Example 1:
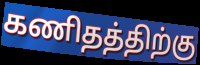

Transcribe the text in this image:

கணிதத்திற்கு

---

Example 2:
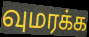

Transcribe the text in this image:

வுமரக்க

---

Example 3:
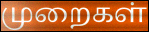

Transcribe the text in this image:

முறைகள்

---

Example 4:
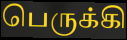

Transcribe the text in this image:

பெருக்கி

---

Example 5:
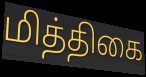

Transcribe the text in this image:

மித்திகை